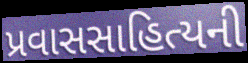
પ્રવાસસાહિત્યની